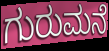
ಗುರುಮನೆ